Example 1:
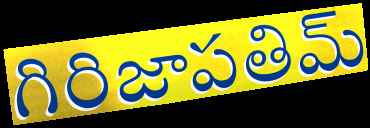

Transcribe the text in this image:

గిరిజాపతిమ్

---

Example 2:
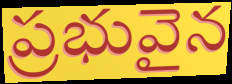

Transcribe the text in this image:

ప్రభువైన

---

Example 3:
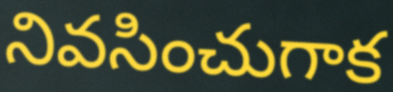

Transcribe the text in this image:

నివసించుగాక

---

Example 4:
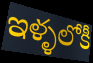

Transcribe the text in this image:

ఇళ్ళలోకీ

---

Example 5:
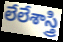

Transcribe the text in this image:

లేలేశాస్త్రి